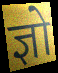
ज्ञो